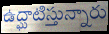
ఉద్ఘాటిస్తున్నారు